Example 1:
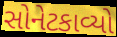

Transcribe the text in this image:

સોનેટકાવ્યો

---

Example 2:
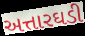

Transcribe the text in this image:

અત્તારઘડી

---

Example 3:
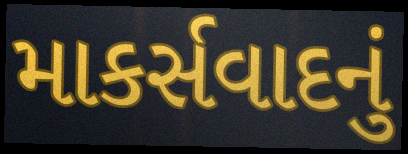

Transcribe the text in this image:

માકર્સવાદનું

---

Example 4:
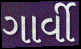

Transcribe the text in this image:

ગાર્વી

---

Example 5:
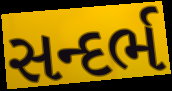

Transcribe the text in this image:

સન્દર્ભ